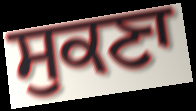
ਸੁਕਣਾ